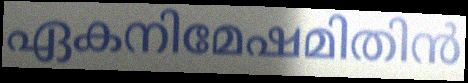
ഏകനിമേഷമിതിൻ